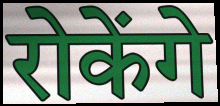
रोकेंगे